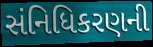
સંનિધિકરણની